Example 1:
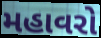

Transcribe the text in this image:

મહાવરો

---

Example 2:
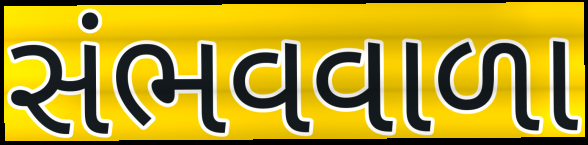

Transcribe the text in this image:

સંભવવાળા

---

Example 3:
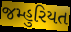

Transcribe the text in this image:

જમ્હુરિયત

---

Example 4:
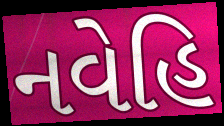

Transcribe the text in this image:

નવેહિ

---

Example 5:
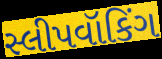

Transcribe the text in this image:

સ્લીપવૉકિંગ